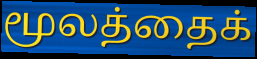
மூலத்தைக்